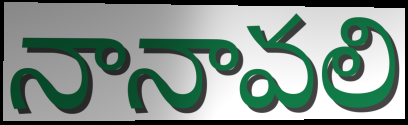
నానావలి